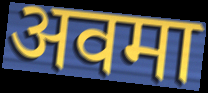
अवमा